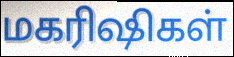
மகரிஷிகள்